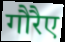
गौरैए